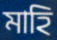
মাহি